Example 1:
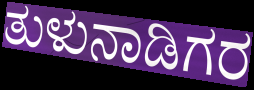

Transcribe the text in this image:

ತುಳುನಾಡಿಗರ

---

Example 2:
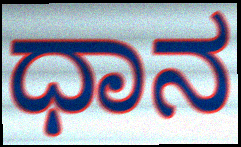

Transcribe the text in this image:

ಧಾನ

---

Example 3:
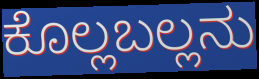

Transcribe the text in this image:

ಕೊಲ್ಲಬಲ್ಲನು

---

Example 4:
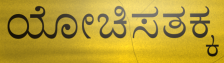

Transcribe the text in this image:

ಯೋಚಿಸತಕ್ಕ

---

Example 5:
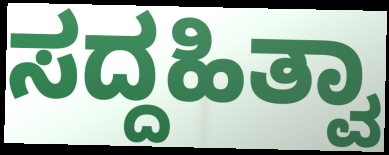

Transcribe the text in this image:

ಸದ್ದಹಿತ್ವಾ